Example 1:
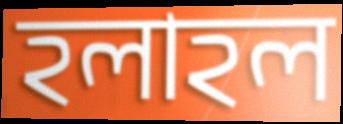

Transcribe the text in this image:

হলাহল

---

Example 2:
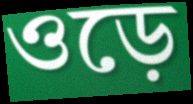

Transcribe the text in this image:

ওড়ে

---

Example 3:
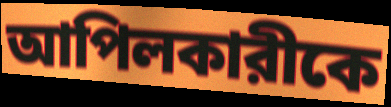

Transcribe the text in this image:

আপিলকারীকে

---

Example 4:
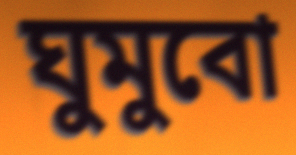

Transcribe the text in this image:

ঘুমুবো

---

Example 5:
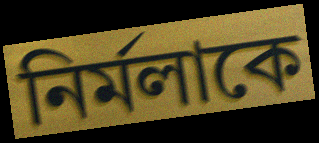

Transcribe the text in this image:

নির্মলাকে